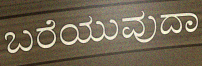
ಬರೆಯುವುದಾ